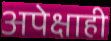
अपेक्षाही